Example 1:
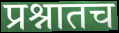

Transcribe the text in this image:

प्रश्नातच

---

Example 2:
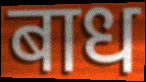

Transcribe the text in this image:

बाध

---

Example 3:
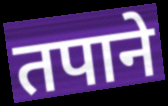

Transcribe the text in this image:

तपाने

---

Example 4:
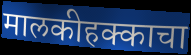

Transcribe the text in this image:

मालकीहक्काचा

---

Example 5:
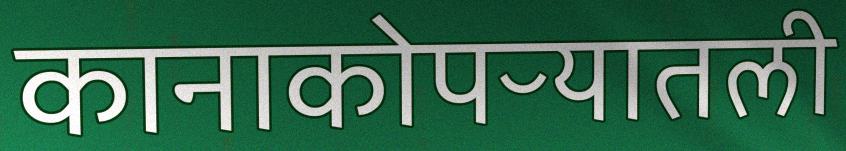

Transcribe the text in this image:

कानाकोपऱ्यातली